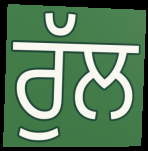
ਰੁੱਲ